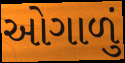
ઓગાળું